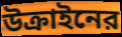
উক্রাইনের